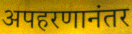
अपहरणानंतर